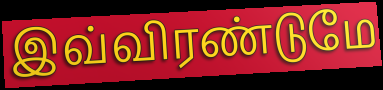
இவ்விரண்டுமே